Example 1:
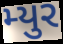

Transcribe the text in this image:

મ્યુર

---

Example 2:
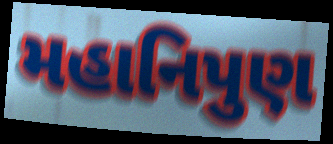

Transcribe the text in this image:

મહાનિપુણ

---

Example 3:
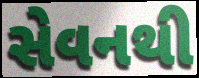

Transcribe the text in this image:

સેવનથી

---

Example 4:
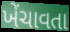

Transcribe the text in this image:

ખેંચાવતા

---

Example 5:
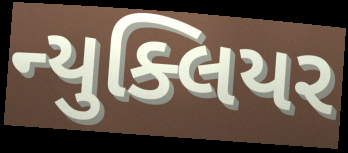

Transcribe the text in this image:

ન્યુક્લિયર